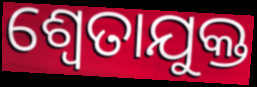
ଶ୍ଵେତାଯୁକ୍ତ